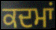
ਕਦਮਾਂ